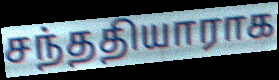
சந்ததியாராக